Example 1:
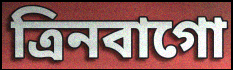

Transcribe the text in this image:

ত্রিনবাগো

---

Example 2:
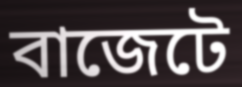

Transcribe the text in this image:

বাজেটে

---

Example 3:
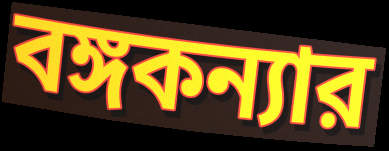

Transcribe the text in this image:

বঙ্গকন্যার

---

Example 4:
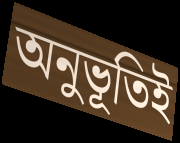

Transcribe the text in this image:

অনুভূতিই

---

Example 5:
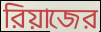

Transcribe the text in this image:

রিয়াজের